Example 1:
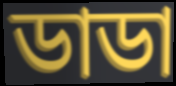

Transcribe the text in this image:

ডাডা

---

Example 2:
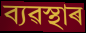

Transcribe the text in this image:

ব্য়ৱস্থাৰ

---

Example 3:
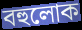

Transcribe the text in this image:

বহুলোক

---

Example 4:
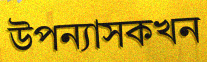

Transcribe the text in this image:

উপন্যাসকখন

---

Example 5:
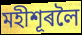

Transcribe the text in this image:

মহীশূৰলৈ